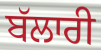
ਬੱਲਾਰੀ